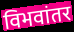
विभवांतर